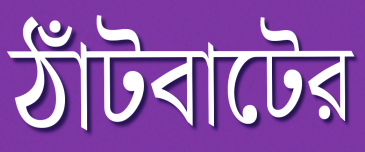
ঠাঁটবাটের